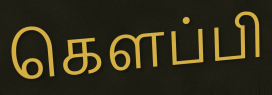
கெளப்பி